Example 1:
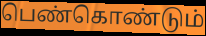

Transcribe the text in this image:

பெண்கொண்டும்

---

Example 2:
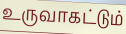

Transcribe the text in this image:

உருவாகட்டும்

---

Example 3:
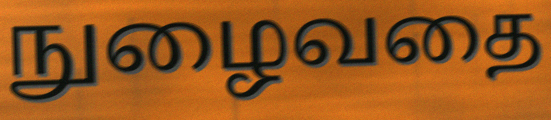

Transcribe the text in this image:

நுழைவதை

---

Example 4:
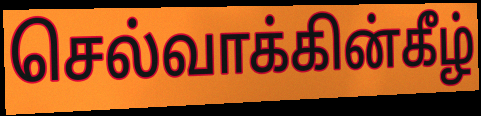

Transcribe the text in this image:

செல்வாக்கின்கீழ்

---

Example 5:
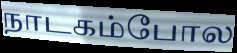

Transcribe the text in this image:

நாடகம்போல